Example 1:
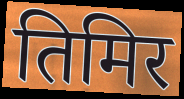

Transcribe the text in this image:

तिमिर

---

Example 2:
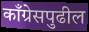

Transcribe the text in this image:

काँग्रेसपुढील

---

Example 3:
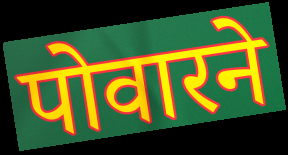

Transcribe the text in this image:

पोवारने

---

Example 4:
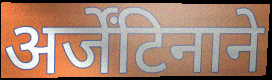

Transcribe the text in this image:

अर्जेंटिनाने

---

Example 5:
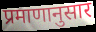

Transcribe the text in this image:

प्रमाणानुसार